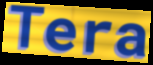
Tera